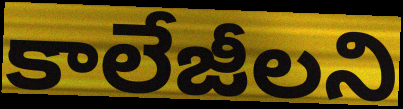
కాలేజీలని